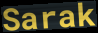
Sarak